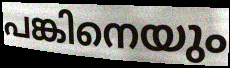
പങ്കിനെയും